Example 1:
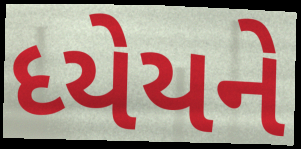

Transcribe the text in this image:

ધ્યેયને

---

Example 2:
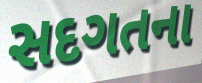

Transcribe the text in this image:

સદગતના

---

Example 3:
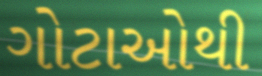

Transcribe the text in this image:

ગોટાઓથી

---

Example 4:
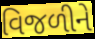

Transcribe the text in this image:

વિજળીને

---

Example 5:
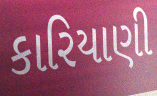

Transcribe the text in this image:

કારિયાણી